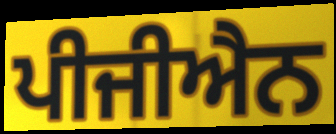
ਪੀਜੀਐਨ